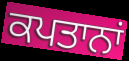
ਕਪਤਾਨਾਂ